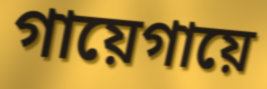
গায়েগায়ে